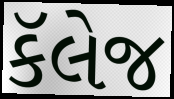
કૅલેજ